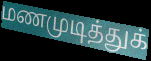
மணமுடித்துக்